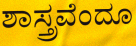
ಶಾಸ್ತ್ರವೆಂದೂ